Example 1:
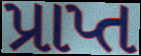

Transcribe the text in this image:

પ્રાપ્‍ત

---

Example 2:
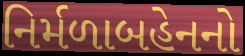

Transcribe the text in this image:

નિર્મળાબહેનનો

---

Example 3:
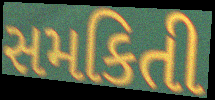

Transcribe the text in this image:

સમકિતી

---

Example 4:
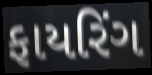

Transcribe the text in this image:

ફાયરિંગ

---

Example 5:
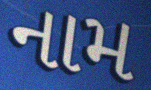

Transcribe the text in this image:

નામ